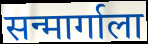
सन्मार्गाला